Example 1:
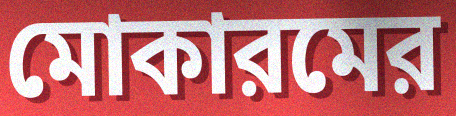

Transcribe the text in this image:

মোকারমের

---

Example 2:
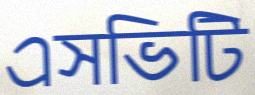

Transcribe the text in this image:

এসভিটি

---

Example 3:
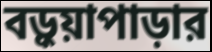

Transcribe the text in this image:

বড়ুয়াপাড়ার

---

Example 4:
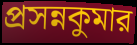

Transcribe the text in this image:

প্রসন্নকুমার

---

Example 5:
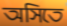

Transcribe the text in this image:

অসিতে